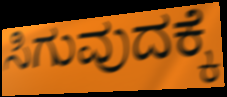
ಸಿಗುವುದಕ್ಕೆ